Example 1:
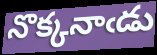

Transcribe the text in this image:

నొక్కనాఁడు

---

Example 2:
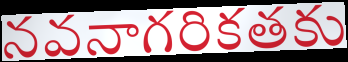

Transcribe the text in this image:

నవనాగరికతకు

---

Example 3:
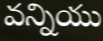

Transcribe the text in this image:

వన్నియు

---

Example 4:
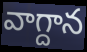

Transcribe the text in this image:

వాగ్దాన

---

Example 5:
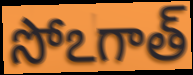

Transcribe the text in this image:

సోఽగాత్